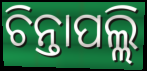
ଚିନ୍ତାପଲ୍ଲି